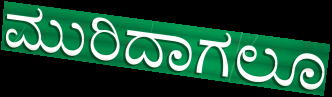
ಮುರಿದಾಗಲೂ